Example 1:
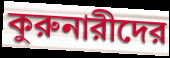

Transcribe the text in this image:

কুরুনারীদের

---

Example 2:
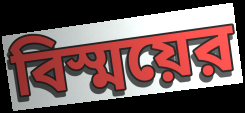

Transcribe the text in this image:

বিস্ময়ের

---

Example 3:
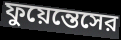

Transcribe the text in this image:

ফুয়েন্তেসের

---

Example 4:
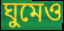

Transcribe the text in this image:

ঘুমেও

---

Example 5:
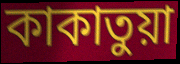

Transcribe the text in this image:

কাকাতুয়া